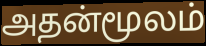
அதன்மூலம்